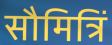
सौमित्रिं